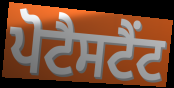
ਪੋਟੈਸਟੈਂਟ